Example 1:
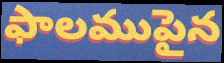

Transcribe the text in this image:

ఫాలముపైన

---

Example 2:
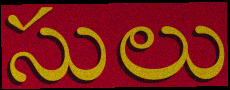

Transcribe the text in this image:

సులు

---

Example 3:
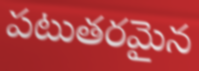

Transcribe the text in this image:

పటుతరమైన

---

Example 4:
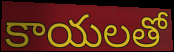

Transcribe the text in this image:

కాయలతో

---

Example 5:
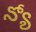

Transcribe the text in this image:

న్యో